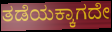
ತಡೆಯಕ್ಕಾಗದೇ